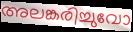
അലങ്കരിച്ചുവോ